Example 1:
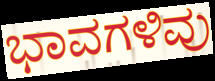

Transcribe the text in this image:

ಭಾವಗಳಿವು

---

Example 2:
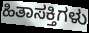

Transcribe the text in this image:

ಹಿತಾಸಕ್ತಿಗಳು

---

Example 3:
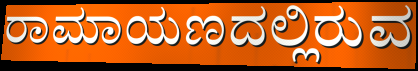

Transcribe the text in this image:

ರಾಮಾಯಣದಲ್ಲಿರುವ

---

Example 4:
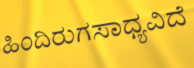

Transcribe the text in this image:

ಹಿಂದಿರುಗಸಾಧ್ಯವಿದೆ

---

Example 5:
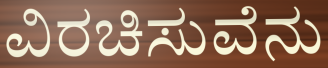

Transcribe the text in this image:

ವಿರಚಿಸುವೆನು